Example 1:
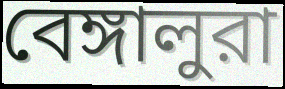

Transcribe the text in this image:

বেঙ্গালুরা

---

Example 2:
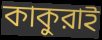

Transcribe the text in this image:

কাকুরাই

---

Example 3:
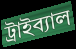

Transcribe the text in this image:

ট্রাইব্যাল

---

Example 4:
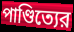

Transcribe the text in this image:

পাণ্ডিত্যের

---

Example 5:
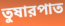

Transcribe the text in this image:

তুষারপাত